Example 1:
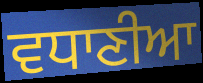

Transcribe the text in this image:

ਵਧਾਣੀਆ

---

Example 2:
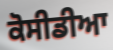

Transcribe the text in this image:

ਕੋਸੀਡੀਆ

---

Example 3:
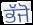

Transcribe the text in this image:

ਭੱਜੋ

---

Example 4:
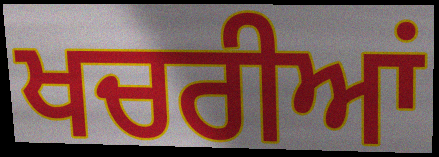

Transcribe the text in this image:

ਖਚਰੀਆਂ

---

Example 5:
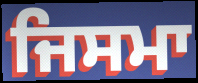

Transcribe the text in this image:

ਜਿਸਮਾ